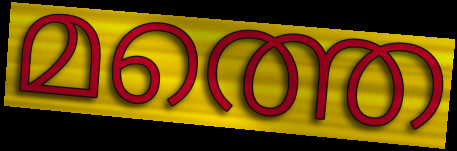
മത്തെ